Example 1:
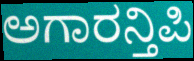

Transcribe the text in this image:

ಅಗಾರನ್ತಿಪಿ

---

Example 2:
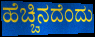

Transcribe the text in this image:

ಹೆಚ್ಚಿನದೆಂದು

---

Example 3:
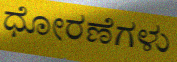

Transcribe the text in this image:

ಧೋರಣೆಗಳು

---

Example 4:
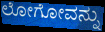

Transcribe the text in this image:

ಲೋಗೋವನ್ನು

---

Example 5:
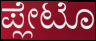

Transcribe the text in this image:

ಪ್ಲೇಟೊ